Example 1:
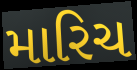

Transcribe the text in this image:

મારિચ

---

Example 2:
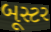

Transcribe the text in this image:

બૂસ્ટર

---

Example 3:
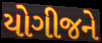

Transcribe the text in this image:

યોગીજને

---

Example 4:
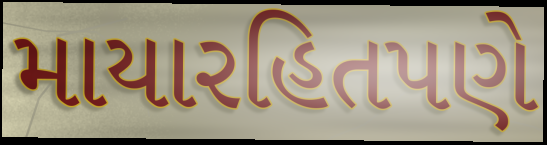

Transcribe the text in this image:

માયારહિતપણે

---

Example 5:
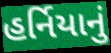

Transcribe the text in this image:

હર્નિયાનું